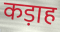
कड़ाह